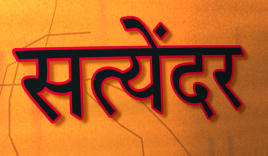
सत्येंदर